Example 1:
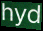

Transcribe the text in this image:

hyd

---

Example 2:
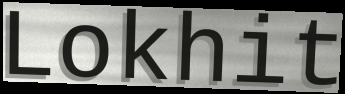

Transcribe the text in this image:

Lokhit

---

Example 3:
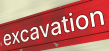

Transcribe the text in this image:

excavation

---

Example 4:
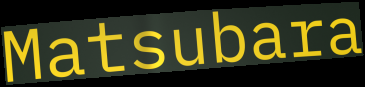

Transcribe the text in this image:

Matsubara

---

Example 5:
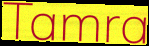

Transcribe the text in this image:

Tamra